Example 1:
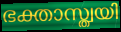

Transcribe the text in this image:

ഭക്താസ്ത്വയി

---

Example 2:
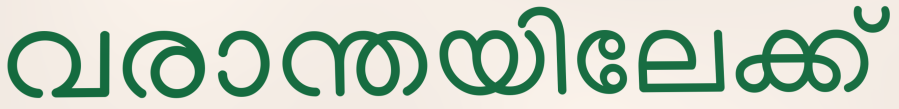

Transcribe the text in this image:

വരാന്തയിലേക്ക്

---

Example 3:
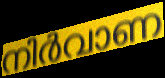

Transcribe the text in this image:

നിർവാണ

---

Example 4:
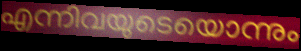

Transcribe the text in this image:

എന്നിവയുടെയൊന്നും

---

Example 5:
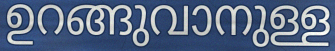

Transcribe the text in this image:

ഉറങ്ങുവാനുള്ള